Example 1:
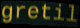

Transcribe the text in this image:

gretil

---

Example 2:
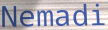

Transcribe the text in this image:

Nemadi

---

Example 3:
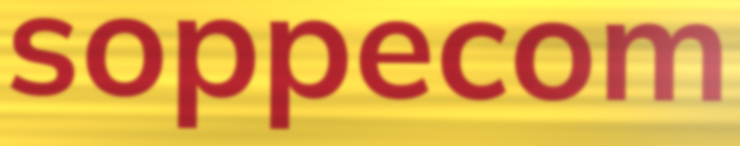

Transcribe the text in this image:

soppecom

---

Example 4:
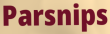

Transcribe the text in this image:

Parsnips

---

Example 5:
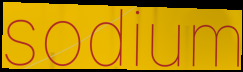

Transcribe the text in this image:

sodium